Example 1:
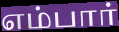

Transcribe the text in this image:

எம்பார்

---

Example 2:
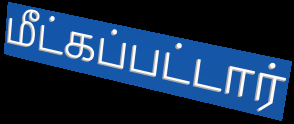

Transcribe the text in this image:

மீட்கப்பட்டார்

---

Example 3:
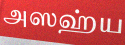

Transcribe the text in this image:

அஸஹ்ய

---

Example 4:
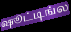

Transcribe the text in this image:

ஷூட்டிங்ல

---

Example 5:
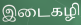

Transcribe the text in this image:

இடைகழி